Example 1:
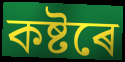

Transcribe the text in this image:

কষ্টৰে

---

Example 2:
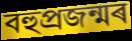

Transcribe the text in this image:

বহুপ্ৰজন্মৰ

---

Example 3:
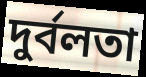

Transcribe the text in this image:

দুৰ্বলতা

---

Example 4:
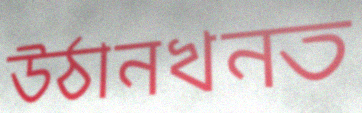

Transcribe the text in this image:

উঠানখনত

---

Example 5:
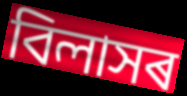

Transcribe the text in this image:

বিলাসৰ